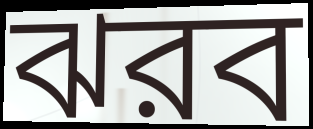
ঝরব